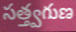
సత్త్వగుణ